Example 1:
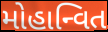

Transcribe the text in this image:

મોહાન્વિત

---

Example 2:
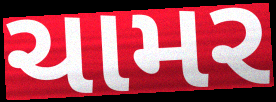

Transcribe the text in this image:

ચામર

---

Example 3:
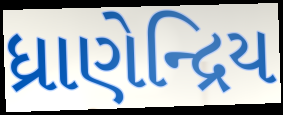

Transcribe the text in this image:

ધ્રાણેન્દ્રિય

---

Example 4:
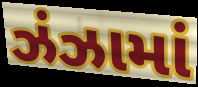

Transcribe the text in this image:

ઝંઝામાં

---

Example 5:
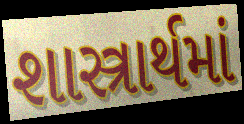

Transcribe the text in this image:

શાસ્ત્રાર્થમાં